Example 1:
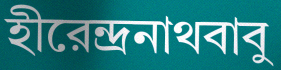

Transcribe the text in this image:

হীরেন্দ্রনাথবাবু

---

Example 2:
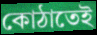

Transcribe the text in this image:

কোঠাতেই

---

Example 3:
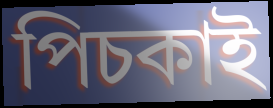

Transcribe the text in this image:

পিচকাই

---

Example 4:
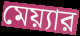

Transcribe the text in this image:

মেয়্যার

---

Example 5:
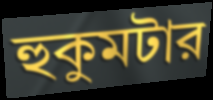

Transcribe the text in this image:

হুকুমটার